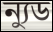
ন্যুড